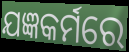
ଯଜ୍ଞକର୍ମରେ